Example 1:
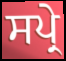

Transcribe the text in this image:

ਸਪ੍ਰੇ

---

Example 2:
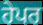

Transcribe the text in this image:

ਹੇਪਰ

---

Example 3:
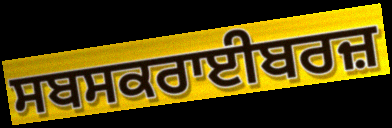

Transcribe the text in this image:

ਸਬਸਕਰਾਈਬਰਜ਼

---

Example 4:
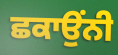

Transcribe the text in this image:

ਛਕਾਉਂਨੀ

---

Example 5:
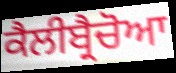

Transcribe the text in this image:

ਕੈਲੀਬ੍ਰੈਚੋਆ